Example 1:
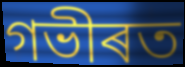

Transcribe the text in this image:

গভীৰত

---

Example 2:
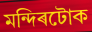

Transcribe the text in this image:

মন্দিৰটোক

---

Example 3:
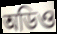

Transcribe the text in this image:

অডিও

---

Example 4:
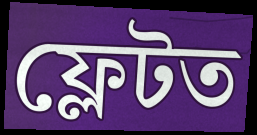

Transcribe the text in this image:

ফ্লেটত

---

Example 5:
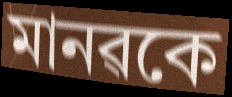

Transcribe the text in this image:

মানৱকে